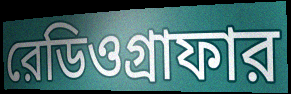
রেডিওগ্রাফার